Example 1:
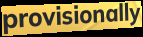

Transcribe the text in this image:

provisionally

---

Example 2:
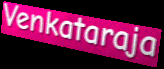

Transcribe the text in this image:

Venkataraja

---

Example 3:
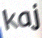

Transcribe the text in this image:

kaj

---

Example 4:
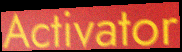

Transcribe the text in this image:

Activator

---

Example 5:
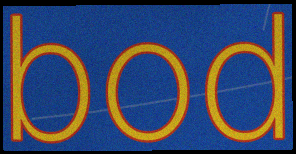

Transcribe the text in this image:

bod